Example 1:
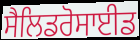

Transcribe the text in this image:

ਸੈਲਿਡਰੋਸਾਈਡ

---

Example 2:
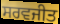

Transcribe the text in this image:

ਸਰਵਜੀਤ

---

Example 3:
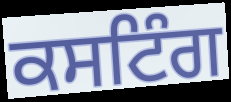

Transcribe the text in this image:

ਕਸਟਿੰਗ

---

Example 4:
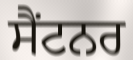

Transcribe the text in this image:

ਸੈਂਟਨਰ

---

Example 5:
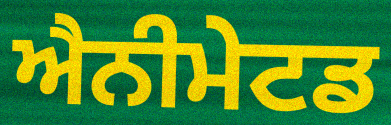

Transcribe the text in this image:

ਐਨੀਮੇਟਡ